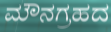
ಮೌನಗ್ರಹದ